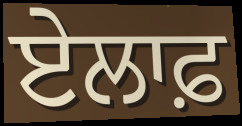
ਏਲਾਫ਼